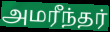
அமரீந்தர்